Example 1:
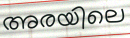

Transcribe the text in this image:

അരയിലെ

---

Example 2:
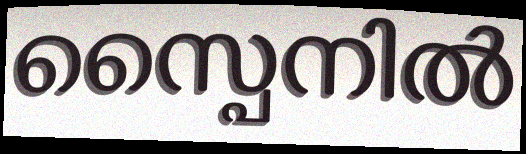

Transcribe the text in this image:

സ്പൈനിൽ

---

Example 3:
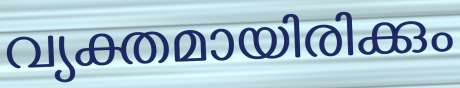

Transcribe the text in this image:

വ്യക്തമായിരിക്കും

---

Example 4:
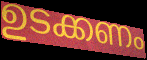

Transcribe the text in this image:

ഉടക്കണം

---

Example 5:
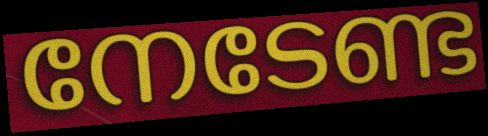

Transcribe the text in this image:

നേടേണ്ട